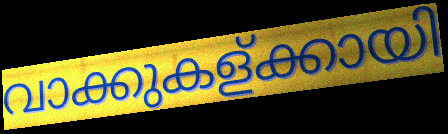
വാക്കുകള്ക്കായി